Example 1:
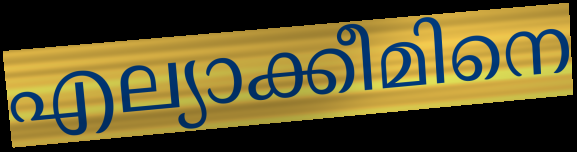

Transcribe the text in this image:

എല്യാക്കീമിനെ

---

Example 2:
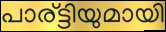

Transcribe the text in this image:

പാര്ട്ടിയുമായി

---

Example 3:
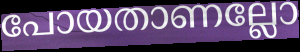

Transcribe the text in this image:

പോയതാണല്ലോ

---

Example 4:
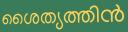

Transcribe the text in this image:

ശൈത്യത്തിൻ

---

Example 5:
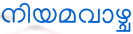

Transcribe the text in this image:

നിയമവാഴ്ച